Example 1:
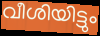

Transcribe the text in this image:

വീശിയിട്ടും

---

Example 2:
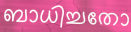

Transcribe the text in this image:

ബാധിച്ചതോ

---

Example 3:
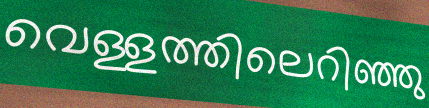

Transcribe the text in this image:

വെള്ളത്തിലെറിഞ്ഞു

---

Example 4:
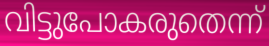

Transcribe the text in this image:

വിട്ടുപോകരുതെന്ന്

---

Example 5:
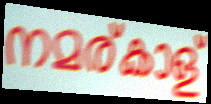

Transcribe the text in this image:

നമര്കാള്